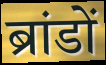
ब्रांडों